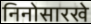
निनोसारखे